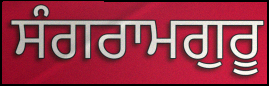
ਸੰਗਰਾਮਗੁਰੂ